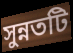
সুন্নতটি